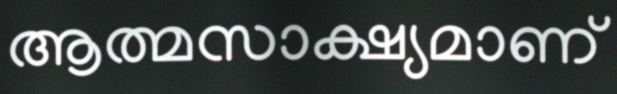
ആത്മസാക്ഷ്യമാണ്